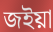
জইয়া